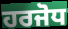
ਹਰਜੋਧ